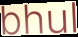
bhul